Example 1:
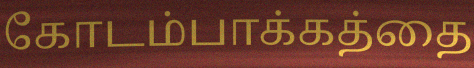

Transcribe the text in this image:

கோடம்பாக்கத்தை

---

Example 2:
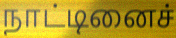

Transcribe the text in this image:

நாட்டினைச்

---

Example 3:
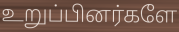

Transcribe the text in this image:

உறுப்பினர்களே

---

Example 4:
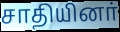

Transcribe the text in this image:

சாதியினர்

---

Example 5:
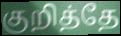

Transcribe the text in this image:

குறித்தே